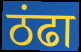
ठंढा